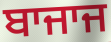
ਬਾਜਾਜ